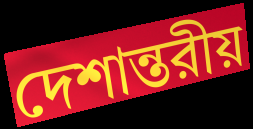
দেশান্তরীয়